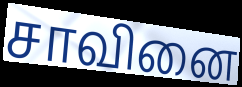
சாவினை